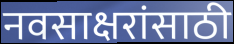
नवसाक्षरांसाठी